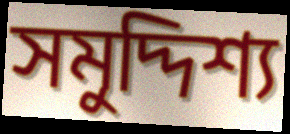
সমুদ্দিশ্য